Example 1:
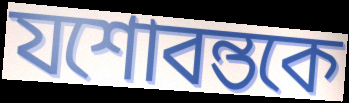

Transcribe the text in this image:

যশোবন্তকে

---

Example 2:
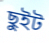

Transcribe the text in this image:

ছুইট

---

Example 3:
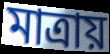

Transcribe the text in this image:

মাত্রায়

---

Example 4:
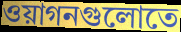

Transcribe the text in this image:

ওয়াগনগুলোতে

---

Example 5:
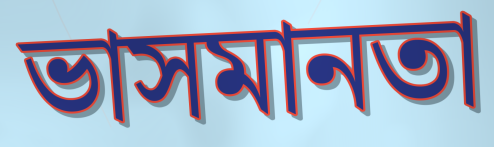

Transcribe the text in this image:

ভাসমানতা